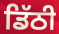
ਡਿੱਠੀ